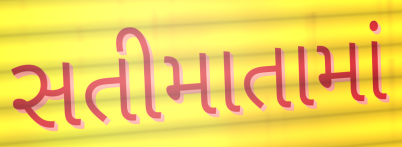
સતીમાતામાં